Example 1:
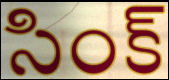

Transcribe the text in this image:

సింక్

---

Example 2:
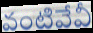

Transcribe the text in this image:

వంటివేవీ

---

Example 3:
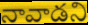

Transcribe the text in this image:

నావాడని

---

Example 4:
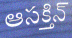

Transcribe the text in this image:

ఆసక్తిన్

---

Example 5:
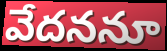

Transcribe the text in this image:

వేదననూ